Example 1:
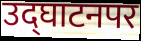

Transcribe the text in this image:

उद्घाटनपर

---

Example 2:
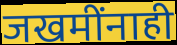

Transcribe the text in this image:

जखमींनाही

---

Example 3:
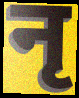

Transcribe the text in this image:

नृ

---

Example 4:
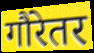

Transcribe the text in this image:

गौरेतर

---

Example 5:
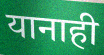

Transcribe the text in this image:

यानाही